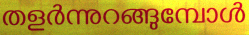
തളർന്നുറങ്ങുമ്പോൾ